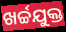
ଖର୍ଚ୍ଚଯୁକ୍ତ